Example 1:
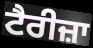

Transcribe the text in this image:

ਟੈਰੀਜ਼ਾ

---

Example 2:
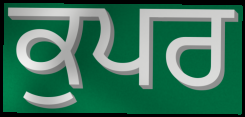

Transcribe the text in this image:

ਕੁਪਰ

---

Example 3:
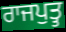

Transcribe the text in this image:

ਰਾਜਪੁਤ੍ਤ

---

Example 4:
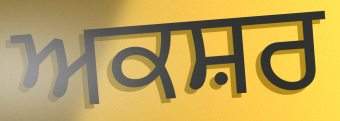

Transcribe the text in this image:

ਅਕਸ਼ਰ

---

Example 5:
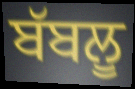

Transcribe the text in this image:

ਬੱਬਲੂ